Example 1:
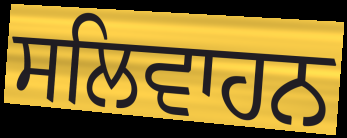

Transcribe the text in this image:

ਸਲਿਵਾਹਨ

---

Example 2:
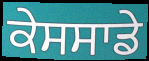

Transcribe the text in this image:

ਕੇਸਸਾਡੇ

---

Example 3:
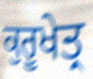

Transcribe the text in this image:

ਕੁਰੂਖੇਤ੍ਰ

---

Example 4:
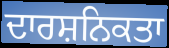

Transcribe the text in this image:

ਦਾਰਸ਼ਨਿਕਤਾ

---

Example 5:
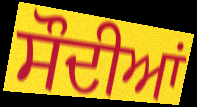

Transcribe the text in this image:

ਸੌਦੀਆਂ